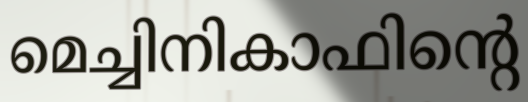
മെച്ചിനികാഫിന്റെ